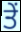
ਤੇੰ